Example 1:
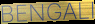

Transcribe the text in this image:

BENGALI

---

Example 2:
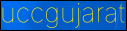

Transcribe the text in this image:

uccgujarat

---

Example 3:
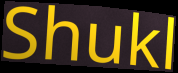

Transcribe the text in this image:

Shukl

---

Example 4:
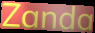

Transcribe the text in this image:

Zanda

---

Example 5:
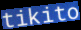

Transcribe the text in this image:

tikito